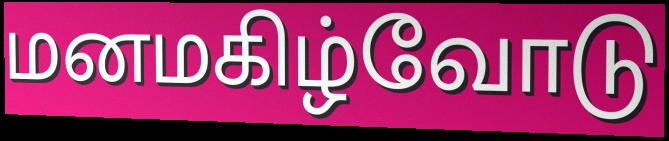
மனமகிழ்வோடு